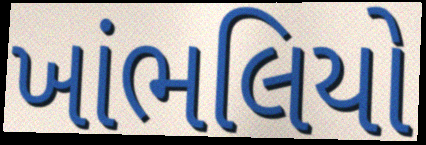
ખાંભલિયો